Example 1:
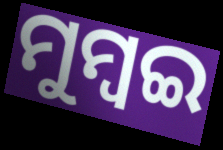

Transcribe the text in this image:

ମୁମ୍ୱଇ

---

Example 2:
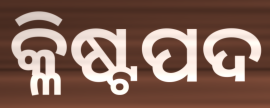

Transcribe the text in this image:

କ୍ଳିଷ୍ଟପଦ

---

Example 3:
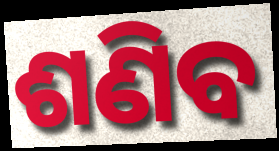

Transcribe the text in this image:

ଶଣିବ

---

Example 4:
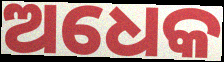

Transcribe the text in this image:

ଅଧେକ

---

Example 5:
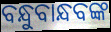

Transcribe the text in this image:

ବନ୍ଧୁବାନ୍ଧବଙ୍କ